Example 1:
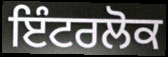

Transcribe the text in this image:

ਇੰਟਰਲੋਕ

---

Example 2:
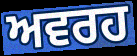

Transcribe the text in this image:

ਅਵਰਹ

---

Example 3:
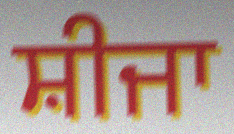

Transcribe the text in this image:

ਸ਼ੀਜਾ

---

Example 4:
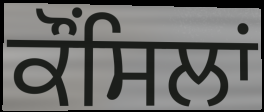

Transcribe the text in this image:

ਕੌਂਸਿਲਾਂ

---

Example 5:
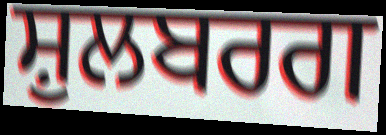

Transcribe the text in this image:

ਸ਼ੁਲਬਰਗ